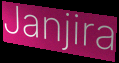
Janjira